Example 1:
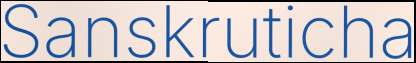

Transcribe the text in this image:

Sanskruticha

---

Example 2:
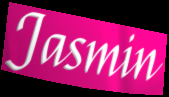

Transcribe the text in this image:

Jasmin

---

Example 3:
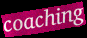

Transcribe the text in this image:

coaching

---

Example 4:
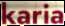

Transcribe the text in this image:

karia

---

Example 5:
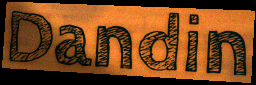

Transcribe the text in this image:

Dandin